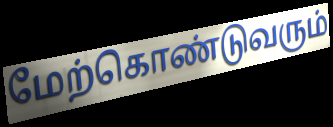
மேற்கொண்டுவரும்